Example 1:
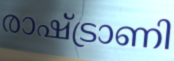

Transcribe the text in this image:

രാഷ്ട്രാണി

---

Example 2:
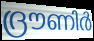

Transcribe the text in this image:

ദ്രൗണിർ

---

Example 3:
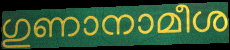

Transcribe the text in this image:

ഗുണാനാമീശ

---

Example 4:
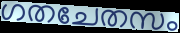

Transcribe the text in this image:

ഗതചേതസം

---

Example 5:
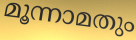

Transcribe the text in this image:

മൂന്നാമതും